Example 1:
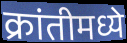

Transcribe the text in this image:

क्रांतीमध्ये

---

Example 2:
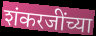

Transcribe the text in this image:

शंकरजींच्या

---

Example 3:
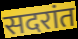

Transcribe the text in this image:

सदरांत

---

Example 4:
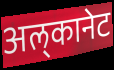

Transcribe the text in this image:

अल्कानेट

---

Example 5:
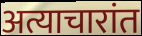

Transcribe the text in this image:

अत्याचारांत